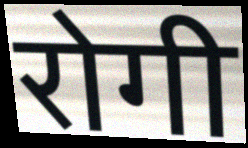
रोगी